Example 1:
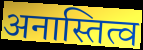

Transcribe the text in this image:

अनास्तित्व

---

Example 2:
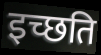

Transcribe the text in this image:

इच्छति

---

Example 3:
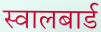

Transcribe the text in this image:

स्वालबार्ड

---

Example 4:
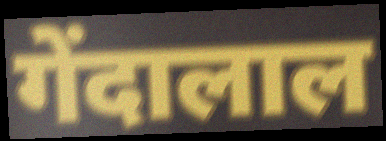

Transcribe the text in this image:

गेंदालाल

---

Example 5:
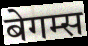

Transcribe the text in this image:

बेगम्स